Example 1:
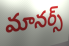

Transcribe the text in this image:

మానర్స్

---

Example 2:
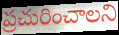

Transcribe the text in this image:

ప్రచురించాలని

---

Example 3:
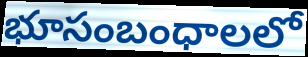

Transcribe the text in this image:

భూసంబంధాలలో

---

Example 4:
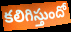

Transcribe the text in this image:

కలిగిస్తుందో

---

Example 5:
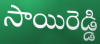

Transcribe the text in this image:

సాయిరెడ్డి